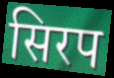
सिरप